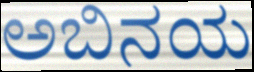
ಅಬಿನಯ